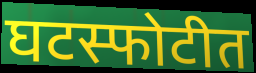
घटस्फोटीत